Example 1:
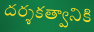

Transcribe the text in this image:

దర్శకత్వానికి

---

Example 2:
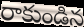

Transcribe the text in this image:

రాకుండిన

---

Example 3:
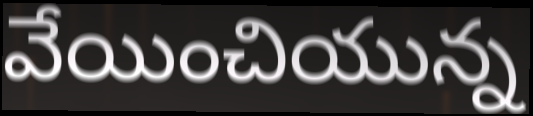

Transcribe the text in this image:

వేయించియున్న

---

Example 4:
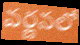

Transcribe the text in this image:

వర్ణనలో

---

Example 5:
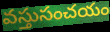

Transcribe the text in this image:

వస్తుసంచయం